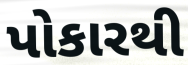
પોકારથી